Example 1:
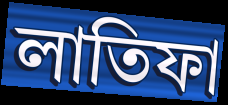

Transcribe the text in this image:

লাতিফা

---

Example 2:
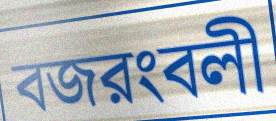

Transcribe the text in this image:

বজরংবলী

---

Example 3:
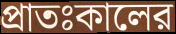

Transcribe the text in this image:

প্রাতঃকালের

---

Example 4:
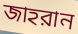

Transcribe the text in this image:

জাহরান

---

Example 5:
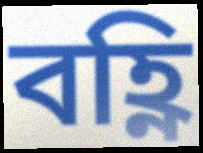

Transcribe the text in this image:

বহ্ণি